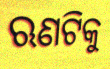
ଋଣଟିକୁ